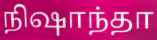
நிஷாந்தா